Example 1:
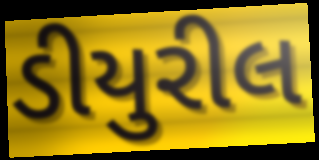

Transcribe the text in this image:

ડીયુરીલ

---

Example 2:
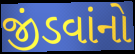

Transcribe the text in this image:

જીંડવાંનો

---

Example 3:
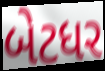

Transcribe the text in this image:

બેટધર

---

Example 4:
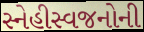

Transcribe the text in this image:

સ્નેહીસ્વજનોની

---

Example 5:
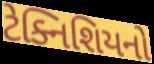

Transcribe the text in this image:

ટેક્નિશિયનો